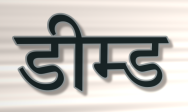
डीम्ड